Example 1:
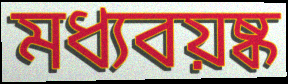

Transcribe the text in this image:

মধ্যবয়ষ্ক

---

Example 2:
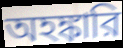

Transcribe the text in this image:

অহঙ্কারি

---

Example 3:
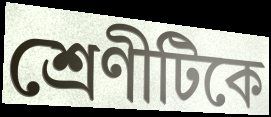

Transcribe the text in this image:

শ্রেণীটিকে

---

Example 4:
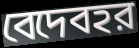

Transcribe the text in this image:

বেদেবহর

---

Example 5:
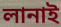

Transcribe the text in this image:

লানাই